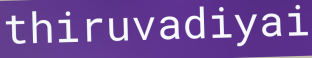
thiruvadiyai